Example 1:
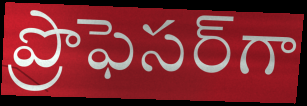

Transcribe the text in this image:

ప్రొఫెసర్‌గా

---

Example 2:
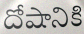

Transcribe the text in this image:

దోషానికి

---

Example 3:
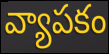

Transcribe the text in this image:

వ్యాపకం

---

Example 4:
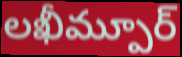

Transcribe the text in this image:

లఖీమ్పూర్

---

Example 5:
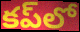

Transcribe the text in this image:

కప్‌లో